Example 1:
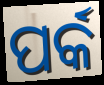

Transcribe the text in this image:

ପର୍କ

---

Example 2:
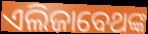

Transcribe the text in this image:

ଏଲିଜାବେଥଙ୍କ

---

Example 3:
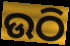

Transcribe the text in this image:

ଉଠି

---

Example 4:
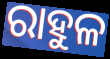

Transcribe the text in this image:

ରାହୁଳ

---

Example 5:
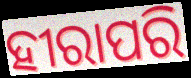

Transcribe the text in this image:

ହୀରାପରି